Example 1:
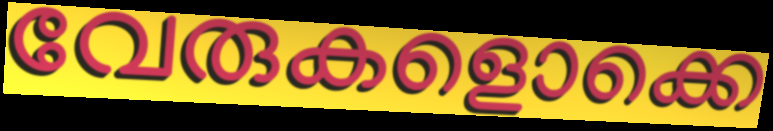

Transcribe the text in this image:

വേരുകളൊക്കെ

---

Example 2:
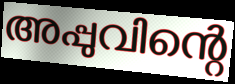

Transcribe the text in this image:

അപ്പുവിന്റെ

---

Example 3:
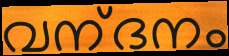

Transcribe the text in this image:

വന്‌ദനം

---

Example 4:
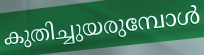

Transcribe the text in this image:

കുതിച്ചുയരുമ്പോൾ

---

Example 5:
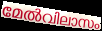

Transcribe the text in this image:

മേൽവിലാസം